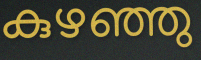
കുഴഞ്ഞു